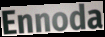
Ennoda